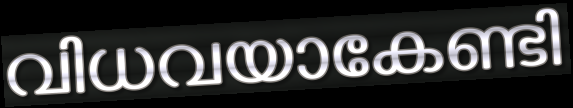
വിധവയാകേണ്ടി